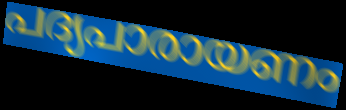
പദ്യപാരായണം